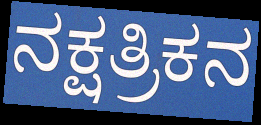
ನಕ್ಷತ್ರಿಕನ